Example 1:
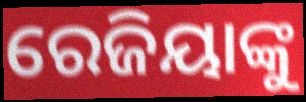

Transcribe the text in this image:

ରେଜିୟାଙ୍କୁ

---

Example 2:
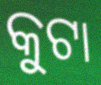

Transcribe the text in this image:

କୁଟା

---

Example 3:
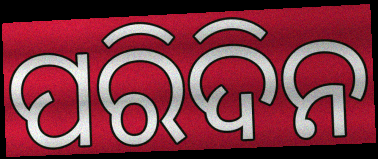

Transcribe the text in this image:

ପରିଦିନ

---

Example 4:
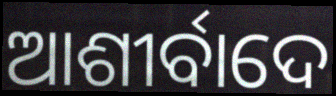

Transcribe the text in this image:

ଆଶୀର୍ବାଦେ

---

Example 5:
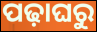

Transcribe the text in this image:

ପଢ଼ାଘରୁ